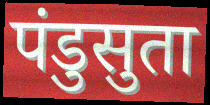
पंडुसुता